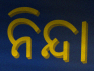
ନିନ୍ଦା